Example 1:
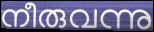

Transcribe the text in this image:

നീരുവന്നു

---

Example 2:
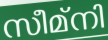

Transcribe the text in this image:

സീമ്നി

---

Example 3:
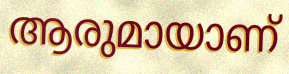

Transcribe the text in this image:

ആരുമായാണ്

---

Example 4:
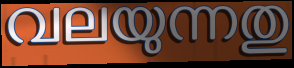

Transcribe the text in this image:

വലയുന്നതു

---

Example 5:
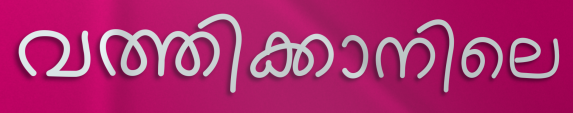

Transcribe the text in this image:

വത്തിക്കാനിലെ